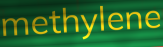
methylene